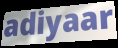
adiyaar